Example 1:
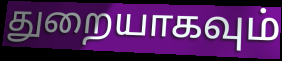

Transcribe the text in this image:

துறையாகவும்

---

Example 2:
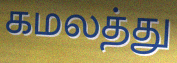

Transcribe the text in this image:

கமலத்து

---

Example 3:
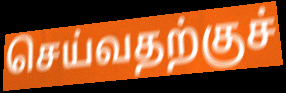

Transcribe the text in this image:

செய்வதற்குச்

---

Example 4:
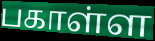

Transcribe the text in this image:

பகாள்ள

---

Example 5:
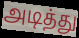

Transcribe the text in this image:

அடித்து